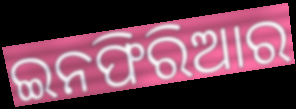
ଇନଫିରିଆର